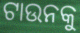
ଟାଉନକୁ